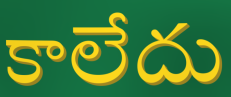
కాలేదు